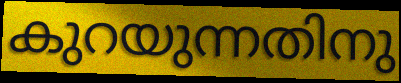
കുറയുന്നതിനു